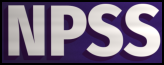
NPSS